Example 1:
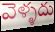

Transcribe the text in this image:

వెళ్ళదు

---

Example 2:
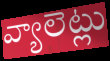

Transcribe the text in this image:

వ్యాలెట్లు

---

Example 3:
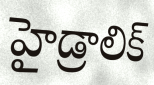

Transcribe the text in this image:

హైడ్రాలిక్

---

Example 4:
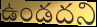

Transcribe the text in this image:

ఉండదని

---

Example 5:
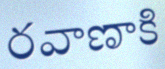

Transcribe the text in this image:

రవాణాకి